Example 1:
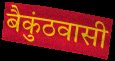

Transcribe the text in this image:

बैकुंठवासी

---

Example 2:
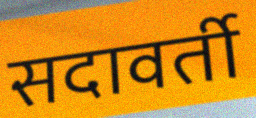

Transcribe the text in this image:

सदावर्ती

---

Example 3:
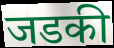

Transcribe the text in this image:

जडकी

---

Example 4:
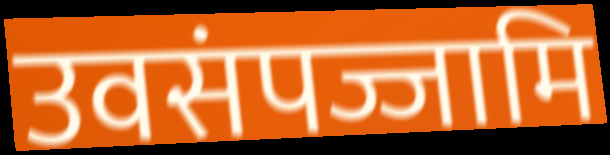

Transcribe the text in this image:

उवसंपज्जामि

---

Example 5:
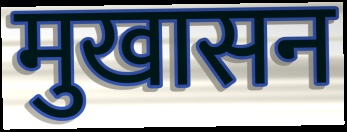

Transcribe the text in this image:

मुखासन